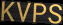
KVPS